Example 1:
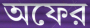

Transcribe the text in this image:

অফের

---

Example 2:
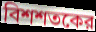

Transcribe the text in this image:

বিশশতকের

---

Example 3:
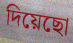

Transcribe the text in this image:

দিয়েছো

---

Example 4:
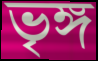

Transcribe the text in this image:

ভৃঙ্গ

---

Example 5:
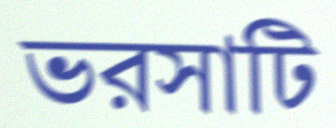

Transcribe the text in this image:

ভরসাটি